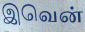
இவென்